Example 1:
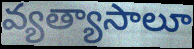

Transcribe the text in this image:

వ్యత్యాసాలూ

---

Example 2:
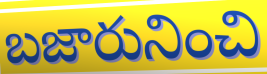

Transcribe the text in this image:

బజారునించి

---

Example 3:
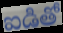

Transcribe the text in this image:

ఐడితో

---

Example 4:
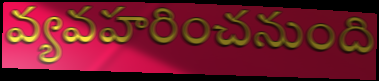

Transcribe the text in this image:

వ్యవహరించనుంది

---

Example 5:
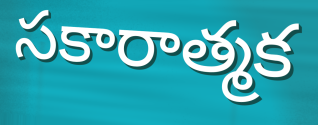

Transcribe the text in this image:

సకారాత్మక